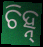
ଚିହ୍ନ୍